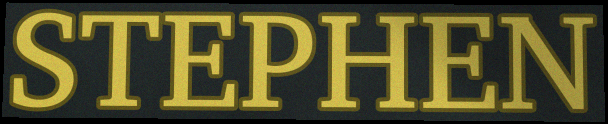
STEPHEN